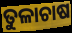
ତୁଳାଚାଷ